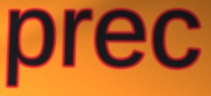
prec